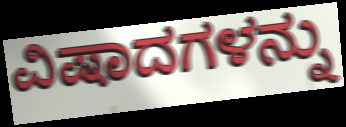
ವಿಷಾದಗಳನ್ನು